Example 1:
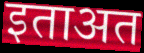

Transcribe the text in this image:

इताअत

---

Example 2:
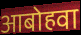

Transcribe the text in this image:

आबोहवा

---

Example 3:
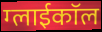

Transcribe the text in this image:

ग्लाईकॉल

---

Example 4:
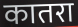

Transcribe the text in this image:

कातरा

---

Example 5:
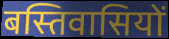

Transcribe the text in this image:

बस्तिवासियों